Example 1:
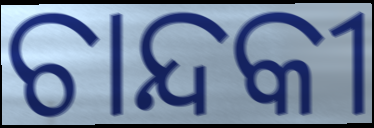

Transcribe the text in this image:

ଚାନ୍ଦକୀ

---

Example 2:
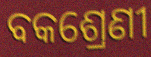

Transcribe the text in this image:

ବକଶ୍ରେଣୀ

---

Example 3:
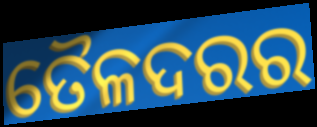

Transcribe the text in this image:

ତୈଳଦରର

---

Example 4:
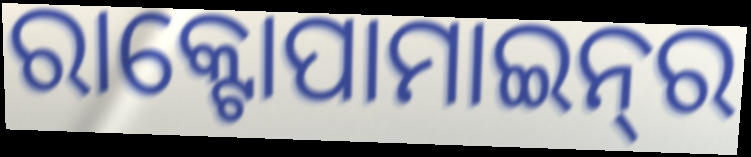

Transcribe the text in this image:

ରାକ୍ଟୋପାମାଇନ୍‌ର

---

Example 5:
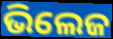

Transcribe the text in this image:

ଭିଲେଜ